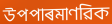
উপপাৰমাণৱিক